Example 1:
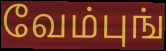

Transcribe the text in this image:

வேம்புங்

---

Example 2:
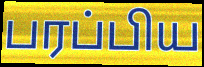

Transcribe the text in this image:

பரப்பிய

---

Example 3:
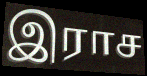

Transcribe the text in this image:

இராச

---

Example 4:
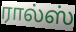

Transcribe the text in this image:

ரால்ஸ்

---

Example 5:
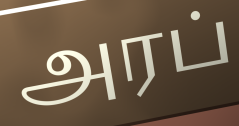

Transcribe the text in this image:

அரப்